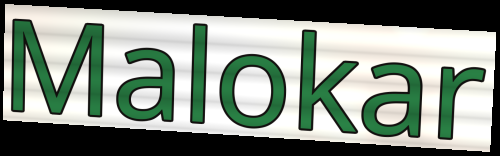
Malokar